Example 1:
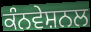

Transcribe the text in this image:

ਕੰਨਵੇਸ਼ਨਲ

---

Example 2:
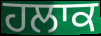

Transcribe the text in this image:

ਹਲਾਕ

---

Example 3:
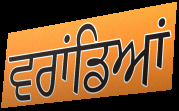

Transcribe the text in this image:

ਵਰਾਂਡਿਆਂ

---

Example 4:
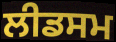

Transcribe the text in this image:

ਲੀਡਸਮ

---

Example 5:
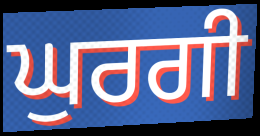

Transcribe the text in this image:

ਘੁਰਗੀ